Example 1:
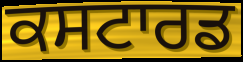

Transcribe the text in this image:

ਕਸਟਾਰਡ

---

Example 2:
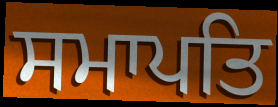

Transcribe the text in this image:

ਸਮਾਪਤਿ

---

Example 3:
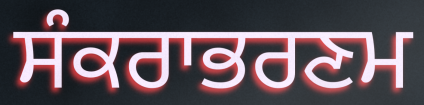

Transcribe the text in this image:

ਸੰਕਰਾਭਰਣਮ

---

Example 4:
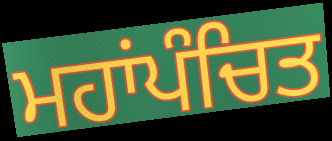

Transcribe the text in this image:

ਮਹਾਂਪੰਚਿਤ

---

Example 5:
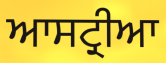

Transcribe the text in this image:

ਆਸਟ੍ਰੀਆ